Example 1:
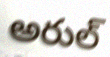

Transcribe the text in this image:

అరుల్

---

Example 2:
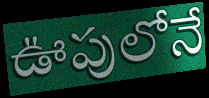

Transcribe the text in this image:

ఊపులోనే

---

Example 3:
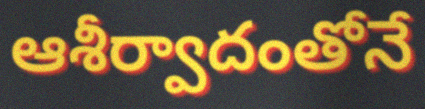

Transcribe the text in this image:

ఆశీర్వాదంతోనే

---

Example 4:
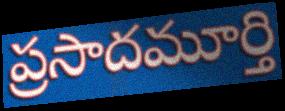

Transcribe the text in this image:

ప్రసాదమూర్తి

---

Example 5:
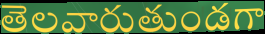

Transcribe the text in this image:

తెలవారుతుండగా